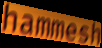
hammesh